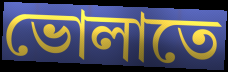
ভোলাতে